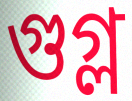
গুগ্ল